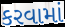
કરવામાં